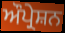
ਔਪ੍ਰੇਸ਼ਨ